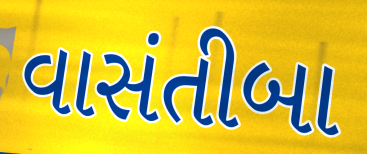
વાસંતીબા